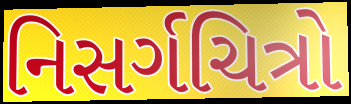
નિસર્ગચિત્રો